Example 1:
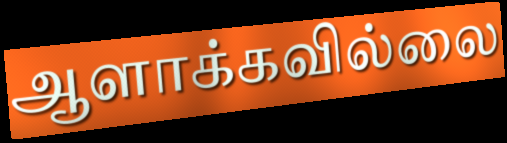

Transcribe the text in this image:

ஆளாக்கவில்லை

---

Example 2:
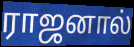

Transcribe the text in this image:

ராஜனால்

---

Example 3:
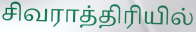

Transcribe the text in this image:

சிவராத்திரியில்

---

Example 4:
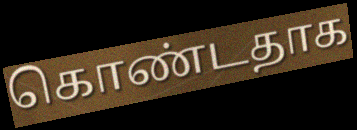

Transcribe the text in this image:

கொண்டதாக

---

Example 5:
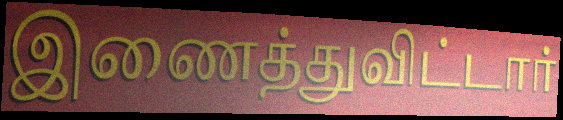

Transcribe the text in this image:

இணைத்துவிட்டார்